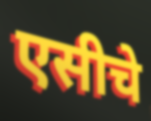
एसीचे